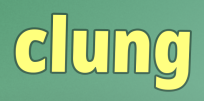
clung